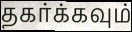
தகர்க்கவும்